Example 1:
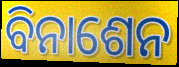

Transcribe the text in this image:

ବିନାଶେନ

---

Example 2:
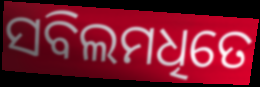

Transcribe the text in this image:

ସବିଲମଧିତେ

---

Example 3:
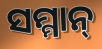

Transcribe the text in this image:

ସମ୍ମାନ୍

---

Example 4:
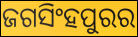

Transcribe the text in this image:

ଜଗସିଂହପୁରର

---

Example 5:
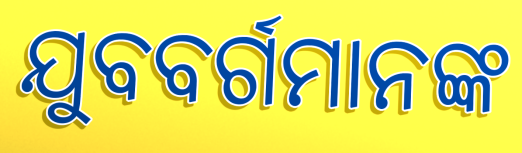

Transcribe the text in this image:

ଯୁବବର୍ଗମାନଙ୍କ